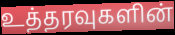
உத்தரவுகளின்